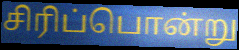
சிரிப்பொன்று